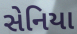
સેનિયા